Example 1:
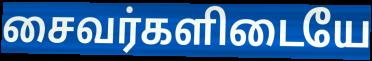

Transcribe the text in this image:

சைவர்களிடையே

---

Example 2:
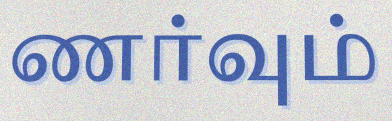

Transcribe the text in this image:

ணர்வும்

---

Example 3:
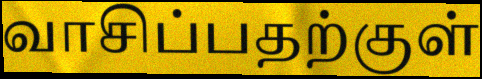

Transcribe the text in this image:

வாசிப்பதற்குள்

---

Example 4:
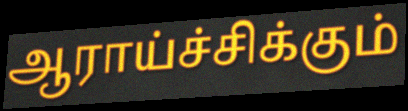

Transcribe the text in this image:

ஆராய்ச்சிக்கும்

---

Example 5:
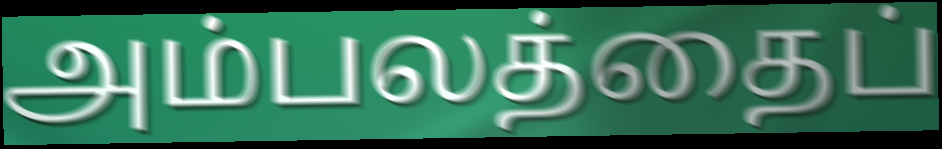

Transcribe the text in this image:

அம்பலத்தைப்